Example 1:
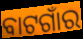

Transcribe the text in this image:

ବାଟଗାଁର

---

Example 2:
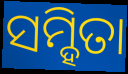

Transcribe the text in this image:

ସମ୍ହିତା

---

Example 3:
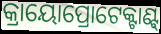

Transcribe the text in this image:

କ୍ରାୟୋପ୍ରୋଟେକ୍ଟାଣ୍ଟ୍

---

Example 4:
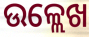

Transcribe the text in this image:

ଉଳ୍ଲେଖ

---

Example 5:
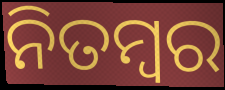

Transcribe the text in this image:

ନିତମ୍ୱର